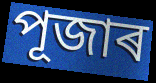
পূজাৰ